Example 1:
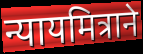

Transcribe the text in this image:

न्यायमित्राने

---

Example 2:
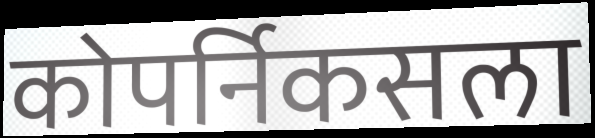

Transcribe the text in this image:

कोपर्निकसला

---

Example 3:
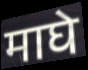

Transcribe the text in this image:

माघे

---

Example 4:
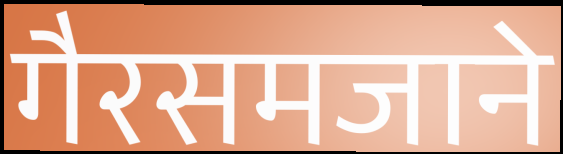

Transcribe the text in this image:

गैरसमजाने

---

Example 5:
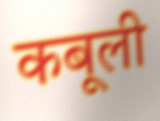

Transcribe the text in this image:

कबूली